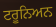
ਟਰੂਨਿਅਨ